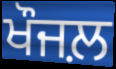
ਖੌਜਲ਼